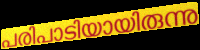
പരിപാടിയായിരുന്നു